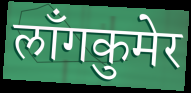
लाँगकुमेर